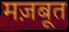
मज़बूत